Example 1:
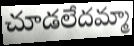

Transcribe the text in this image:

చూడలేదమ్మా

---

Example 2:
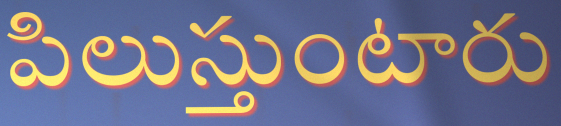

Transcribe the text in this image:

పిలుస్తుంటారు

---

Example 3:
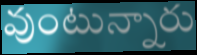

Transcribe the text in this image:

వుంటున్నారు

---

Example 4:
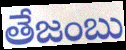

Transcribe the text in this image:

తేజంబు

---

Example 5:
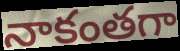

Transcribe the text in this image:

నాకంతగా